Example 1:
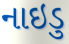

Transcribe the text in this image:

નાઇડુ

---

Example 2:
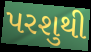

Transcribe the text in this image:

પરશુથી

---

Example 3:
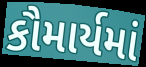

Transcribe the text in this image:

કૌમાર્યમાં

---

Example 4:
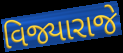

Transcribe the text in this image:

વિજ્યારાજે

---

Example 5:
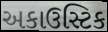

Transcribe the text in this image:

અકાઉસ્ટિક